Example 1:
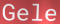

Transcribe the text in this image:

Gele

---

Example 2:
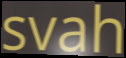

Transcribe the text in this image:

svah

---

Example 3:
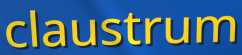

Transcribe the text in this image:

claustrum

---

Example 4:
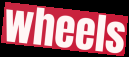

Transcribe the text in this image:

wheels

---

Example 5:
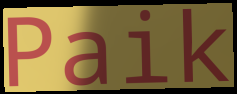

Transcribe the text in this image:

Paik